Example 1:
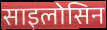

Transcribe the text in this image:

साइलोसिन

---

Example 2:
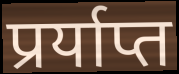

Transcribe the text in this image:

प्रर्याप्त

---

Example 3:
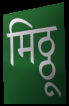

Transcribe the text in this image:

मिठ्ठू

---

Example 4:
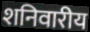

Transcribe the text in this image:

शनिवारीय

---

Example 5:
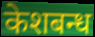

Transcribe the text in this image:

केशबन्ध